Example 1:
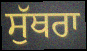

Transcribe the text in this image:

ਸੁੱਥਰਾ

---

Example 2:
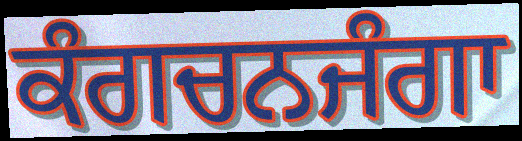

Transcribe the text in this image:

ਕੰਗਚਨਜੰਗਾ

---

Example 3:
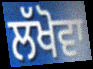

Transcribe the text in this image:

ਲੱਖੋਵਾ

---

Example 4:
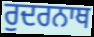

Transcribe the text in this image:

ਰੁਦਰਨਾਥ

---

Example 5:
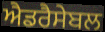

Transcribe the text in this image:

ਐਡਰੈਸੇਬਲ